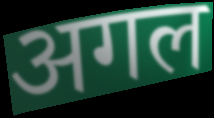
अगल